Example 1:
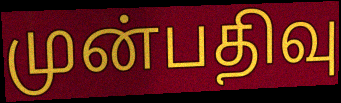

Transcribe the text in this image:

முன்பதிவு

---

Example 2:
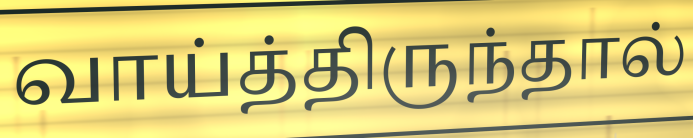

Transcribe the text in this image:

வாய்த்திருந்தால்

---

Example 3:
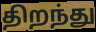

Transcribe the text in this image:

திறந்து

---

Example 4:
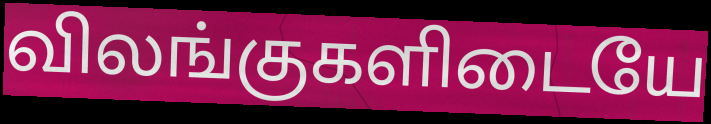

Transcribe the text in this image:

விலங்குகளிடையே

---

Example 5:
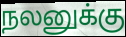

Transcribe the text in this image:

நலனுக்கு